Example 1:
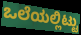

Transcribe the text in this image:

ಒಲೆಯಲ್ಲಿಟ್ಟು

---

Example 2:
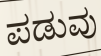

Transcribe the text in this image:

ಪಡುವು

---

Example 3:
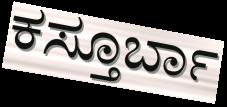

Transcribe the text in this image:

ಕಸ್ತೂರ್ಬಾ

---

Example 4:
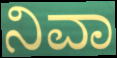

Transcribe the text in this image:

ನಿವಾ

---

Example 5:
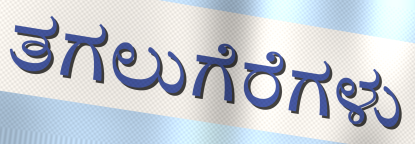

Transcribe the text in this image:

ತಗಲುಗೆರೆಗಳು